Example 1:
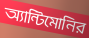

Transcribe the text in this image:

অ্যান্টিমোনির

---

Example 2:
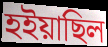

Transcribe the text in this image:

হইয়াছিল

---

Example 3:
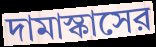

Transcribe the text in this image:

দামাস্কাসের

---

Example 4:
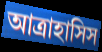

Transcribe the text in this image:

আত্রাহাসিস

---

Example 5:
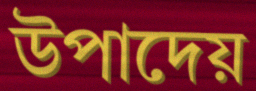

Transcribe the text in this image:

উপাদেয়